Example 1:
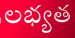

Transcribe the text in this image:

లభ్యత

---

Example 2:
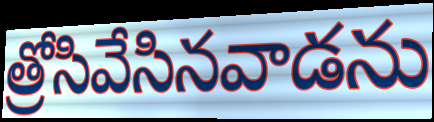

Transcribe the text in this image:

త్రోసివేసినవాడను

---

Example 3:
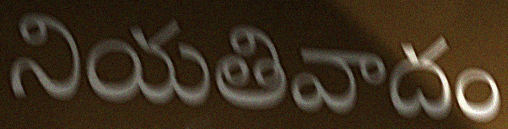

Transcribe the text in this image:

నియతివాదం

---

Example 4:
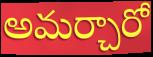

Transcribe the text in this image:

అమర్చారో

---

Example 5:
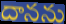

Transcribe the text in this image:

దానను